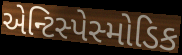
એન્ટિસ્પેસ્મોડિક